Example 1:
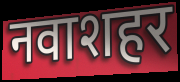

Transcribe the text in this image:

नवाशहर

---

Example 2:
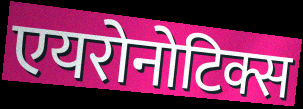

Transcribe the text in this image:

एयरोनोटिक्स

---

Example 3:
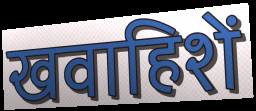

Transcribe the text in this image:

खवाहिशें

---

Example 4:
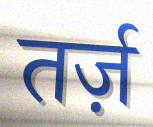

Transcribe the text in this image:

तर्ज़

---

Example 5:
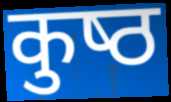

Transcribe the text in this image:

कुष्‍ठ